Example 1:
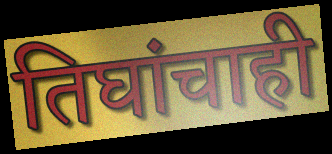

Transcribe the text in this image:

तिघांचाही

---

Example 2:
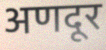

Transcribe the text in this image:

अणदूर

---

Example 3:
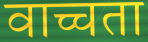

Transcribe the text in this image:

वाच्चता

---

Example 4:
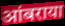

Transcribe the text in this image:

आंबराया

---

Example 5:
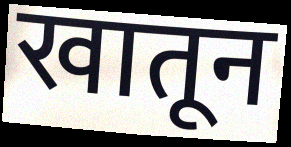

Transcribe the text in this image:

खातून